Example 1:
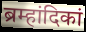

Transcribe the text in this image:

ब्रम्हांदिकां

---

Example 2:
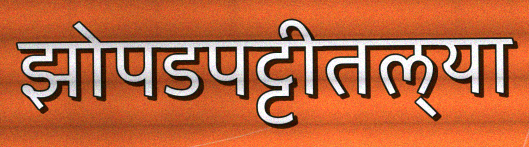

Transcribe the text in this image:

झोपडपट्टीतल्या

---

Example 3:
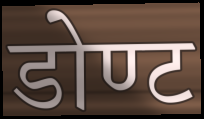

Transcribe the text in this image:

डोण्ट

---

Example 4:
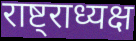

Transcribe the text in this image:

राष्ट्राध्यक्ष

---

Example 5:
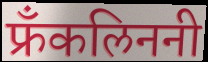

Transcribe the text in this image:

फ्रँकलिननी